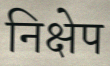
निक्षेप